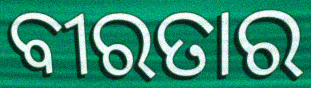
ବୀରତାର